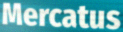
Mercatus